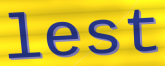
lest